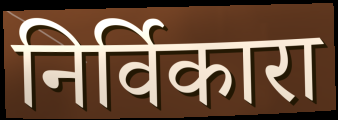
निर्विकारा